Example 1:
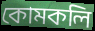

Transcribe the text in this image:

কোমকলি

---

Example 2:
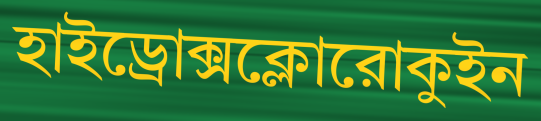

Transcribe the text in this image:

হাইড্রোক্সক্লোরোকুইন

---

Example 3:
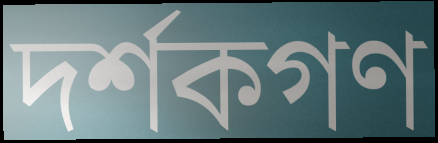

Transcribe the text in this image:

দর্শকগণ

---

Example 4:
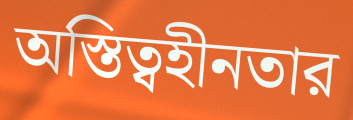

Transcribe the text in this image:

অস্তিত্বহীনতার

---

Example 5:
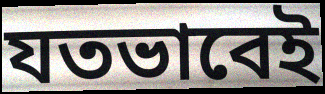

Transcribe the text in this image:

যতভাবেই